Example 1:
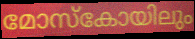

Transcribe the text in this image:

മോസ്കോയിലും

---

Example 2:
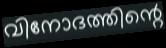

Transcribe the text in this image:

വിനോദത്തിന്റെ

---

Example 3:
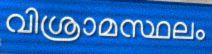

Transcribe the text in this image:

വിശ്രാമസ്ഥലം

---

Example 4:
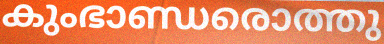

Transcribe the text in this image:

കുംഭാണ്ഡരൊത്തു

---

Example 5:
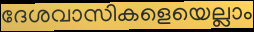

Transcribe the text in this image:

ദേശവാസികളെയെല്ലാം